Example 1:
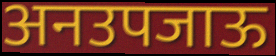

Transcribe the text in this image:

अनउपजाऊ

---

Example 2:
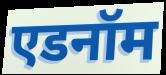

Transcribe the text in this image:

एडनॉम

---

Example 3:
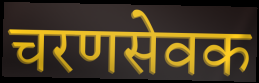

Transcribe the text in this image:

चरणसेवक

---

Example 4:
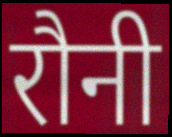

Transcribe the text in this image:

रौनी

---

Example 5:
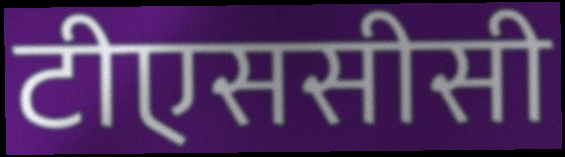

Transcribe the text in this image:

टीएससीसी